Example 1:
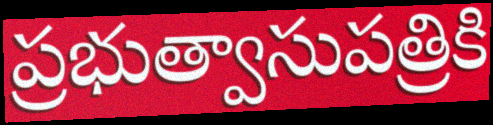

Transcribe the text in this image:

ప్రభుత్వాసుపత్రికి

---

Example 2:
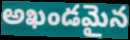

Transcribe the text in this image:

అఖండమైన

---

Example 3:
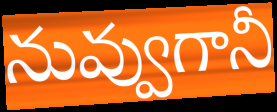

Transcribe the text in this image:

నువ్వుగానీ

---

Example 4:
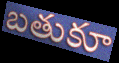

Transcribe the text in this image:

బతుకూ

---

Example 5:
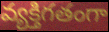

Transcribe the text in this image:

వ్యక్తిగతంగా